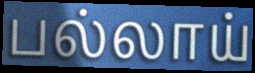
பல்லாய்